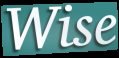
Wise